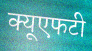
क्यूएफटी